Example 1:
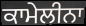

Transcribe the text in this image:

ਕਾਮੇਲੀਨਾ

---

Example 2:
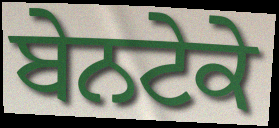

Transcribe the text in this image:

ਬੇਨਟੇਕੇ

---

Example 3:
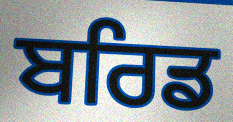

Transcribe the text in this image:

ਬਰਿਡ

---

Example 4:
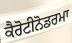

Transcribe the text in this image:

ਕੈਰੋਟੀਨੋਡਰਮਾ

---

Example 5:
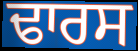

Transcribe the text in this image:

ਢਾਰਸ